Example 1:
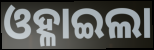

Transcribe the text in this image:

ଓହ୍ଳାଇଲା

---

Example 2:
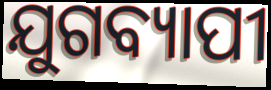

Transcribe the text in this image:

ଯୁଗବ୍ୟାପୀ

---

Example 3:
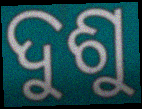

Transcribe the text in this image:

ଦୁଶୁ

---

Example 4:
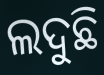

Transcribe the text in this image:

ଲଦୁଛି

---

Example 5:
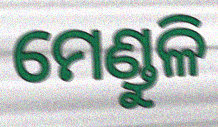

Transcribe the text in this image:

ମେଣ୍ଡୁଳି